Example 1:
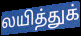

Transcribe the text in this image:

லயித்துக்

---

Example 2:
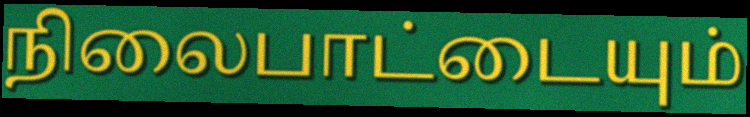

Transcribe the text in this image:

நிலைபாட்டையும்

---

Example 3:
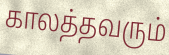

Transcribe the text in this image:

காலத்தவரும்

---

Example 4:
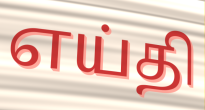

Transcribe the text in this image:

எய்தி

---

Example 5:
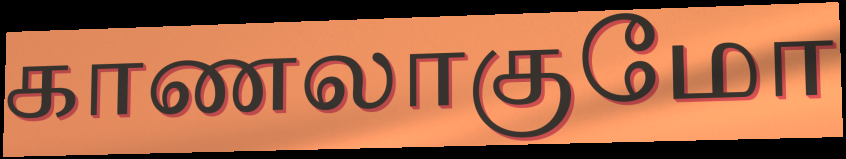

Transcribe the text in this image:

காணலாகுமோ